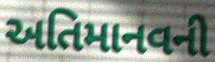
અતિમાનવની